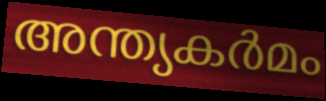
അന്ത്യകർമം